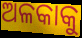
ଅଳକାକୁ